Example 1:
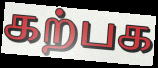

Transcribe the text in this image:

கற்பக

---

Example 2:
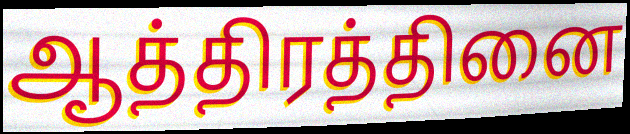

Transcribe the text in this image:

ஆத்திரத்தினை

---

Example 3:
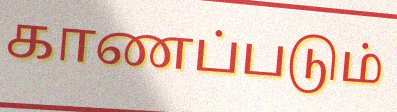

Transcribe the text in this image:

காணப்படும்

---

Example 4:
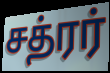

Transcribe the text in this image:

சத்ரர்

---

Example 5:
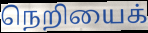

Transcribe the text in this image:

நெறியைக்